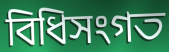
বিধিসংগত